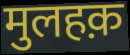
मुलहक़